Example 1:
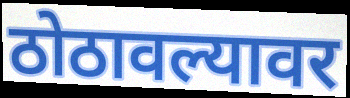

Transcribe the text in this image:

ठोठावल्यावर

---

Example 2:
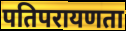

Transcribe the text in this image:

पतिपरायणता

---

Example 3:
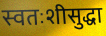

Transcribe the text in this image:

स्वतःशीसुद्धा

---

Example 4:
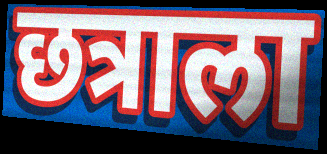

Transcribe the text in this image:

छत्राला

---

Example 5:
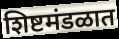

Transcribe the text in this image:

शिष्टमंडळात